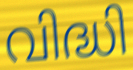
വിദ്ധി